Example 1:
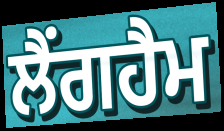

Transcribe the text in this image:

ਲੈਂਗਹੈਮ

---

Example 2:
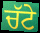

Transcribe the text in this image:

ਚੱਟੇ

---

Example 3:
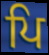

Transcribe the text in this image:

ਪਿ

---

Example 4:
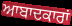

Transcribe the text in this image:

ਆਬਾਦਕਾਰਾਂ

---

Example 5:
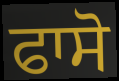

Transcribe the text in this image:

ਫਾਸੋ